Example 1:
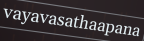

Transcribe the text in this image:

vayavasathaapana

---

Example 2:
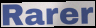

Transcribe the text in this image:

Rarer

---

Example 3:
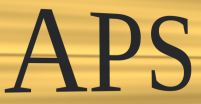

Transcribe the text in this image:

APS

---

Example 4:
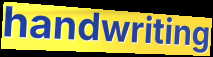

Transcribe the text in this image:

handwriting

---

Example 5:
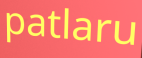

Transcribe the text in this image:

patlaru